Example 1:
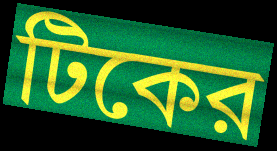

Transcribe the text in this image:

টিকের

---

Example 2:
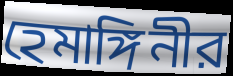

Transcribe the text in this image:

হেমাঙ্গিনীর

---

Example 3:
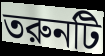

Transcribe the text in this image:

তরুনটি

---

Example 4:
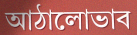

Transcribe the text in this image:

আঠালোভাব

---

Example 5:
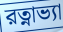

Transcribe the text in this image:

রত্নাভ্যা